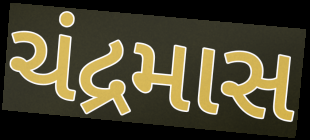
ચંદ્રમાસ